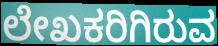
ಲೇಖಕರಿಗಿರುವ